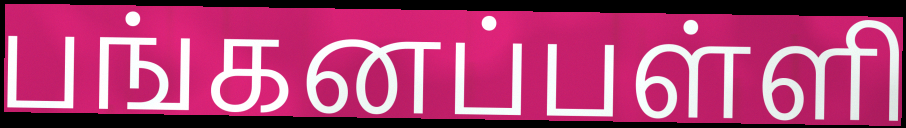
பங்கனப்பள்ளி